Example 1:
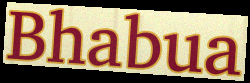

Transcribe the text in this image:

Bhabua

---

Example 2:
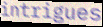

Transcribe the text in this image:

intrigues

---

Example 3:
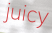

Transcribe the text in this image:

juicy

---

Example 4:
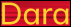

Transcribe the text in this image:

Dara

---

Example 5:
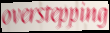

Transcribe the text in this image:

overstepping